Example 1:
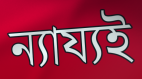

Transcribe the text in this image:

ন্যায্যই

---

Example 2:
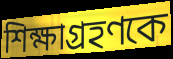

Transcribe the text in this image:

শিক্ষাগ্রহণকে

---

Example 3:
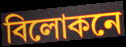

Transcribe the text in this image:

বিলোকনে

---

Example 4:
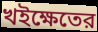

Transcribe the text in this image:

খইক্ষেতের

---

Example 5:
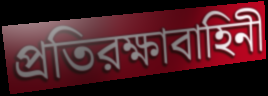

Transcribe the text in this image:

প্রতিরক্ষাবাহিনী